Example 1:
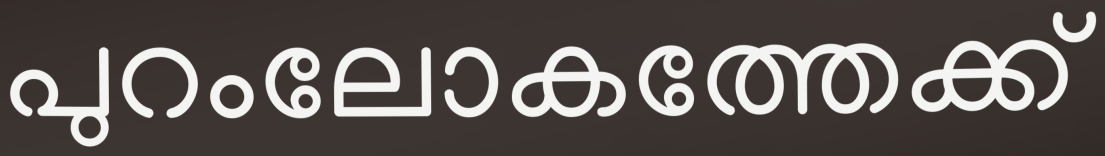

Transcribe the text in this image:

പുറംലോകത്തേക്ക്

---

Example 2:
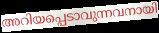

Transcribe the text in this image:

അറിയപ്പെടാവുന്നവനായി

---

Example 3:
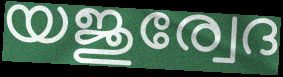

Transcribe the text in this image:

യജുര്വേദ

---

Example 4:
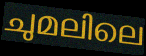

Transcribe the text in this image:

ചുമലിലെ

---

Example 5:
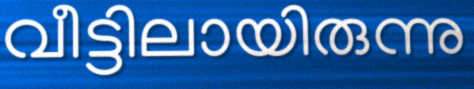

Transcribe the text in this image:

വീട്ടിലായിരുന്നു